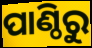
ପାଣ୍ଠିରୁ